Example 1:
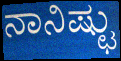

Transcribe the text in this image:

ನಾನಿಷ್ಟು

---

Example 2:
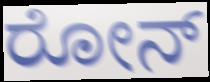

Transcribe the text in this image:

ರೋನ್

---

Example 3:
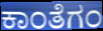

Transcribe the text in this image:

ಕಾಂತೆಗಂ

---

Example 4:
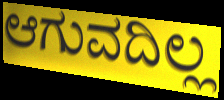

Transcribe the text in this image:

ಆಗುವದಿಲ್ಲ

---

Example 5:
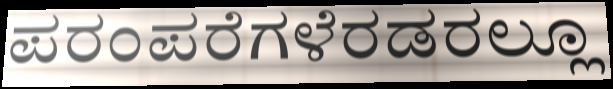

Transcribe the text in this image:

ಪರಂಪರೆಗಳೆರಡರಲ್ಲೂ